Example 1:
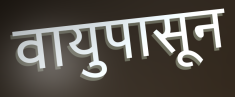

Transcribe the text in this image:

वायुपासून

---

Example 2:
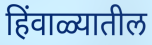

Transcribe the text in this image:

हिंवाळ्यातील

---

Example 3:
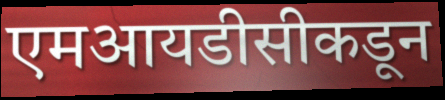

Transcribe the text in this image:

एमआयडीसीकडून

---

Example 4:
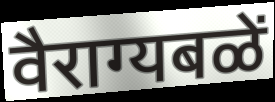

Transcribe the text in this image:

वैराग्यबळें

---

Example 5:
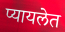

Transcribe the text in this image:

प्यायलेत